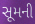
સૂમની